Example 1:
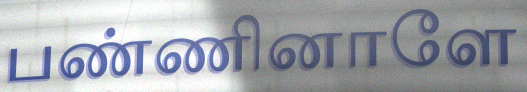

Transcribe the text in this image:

பண்ணினாளே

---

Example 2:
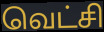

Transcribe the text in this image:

வெட்சி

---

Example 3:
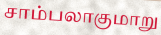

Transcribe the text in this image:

சாம்பலாகுமாறு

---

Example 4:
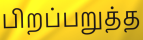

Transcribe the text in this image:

பிறப்பறுத்த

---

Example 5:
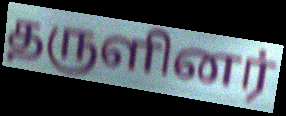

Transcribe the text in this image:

தருளினர்